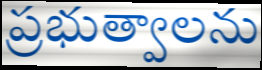
ప్రభుత్వాలను